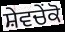
ਸ਼ੇਵਚੇਂਕੋ